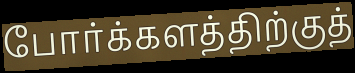
போர்க்களத்திற்குத்